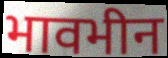
भावभीन